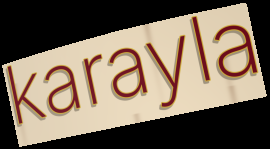
karayla